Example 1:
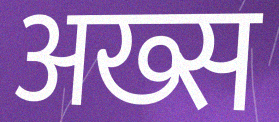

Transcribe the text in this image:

अख्स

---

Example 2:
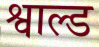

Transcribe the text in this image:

श्वाल्ड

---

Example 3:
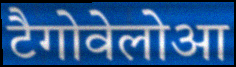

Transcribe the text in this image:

टैगोवेलोआ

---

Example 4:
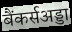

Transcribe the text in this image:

बैंकर्सअड्डा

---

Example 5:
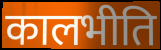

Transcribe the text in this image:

कालभीति